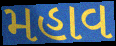
મહાવ